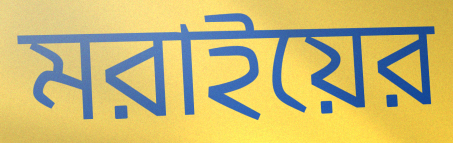
মরাইয়ের